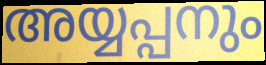
അയ്യപ്പനും